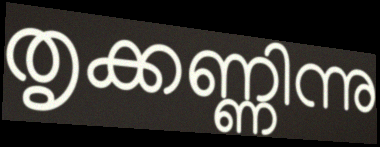
തൃക്കണ്ണിന്നു